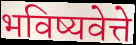
भविष्यवेत्ते